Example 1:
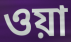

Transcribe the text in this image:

ওয়া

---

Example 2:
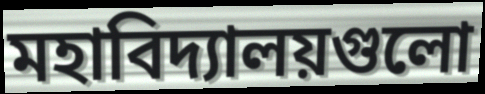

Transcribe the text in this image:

মহাবিদ্যালয়গুলো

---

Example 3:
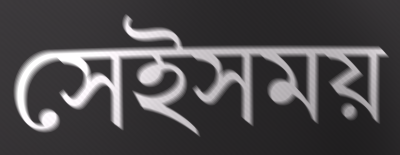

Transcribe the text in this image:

সেইসময়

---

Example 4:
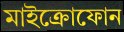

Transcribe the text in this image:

মাইক্রোফোন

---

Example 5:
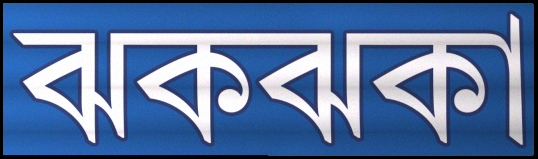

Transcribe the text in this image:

ঝকঝকা